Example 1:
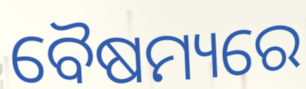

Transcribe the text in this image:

ବୈଷମ୍ୟରେ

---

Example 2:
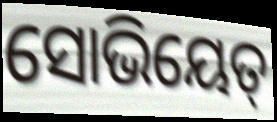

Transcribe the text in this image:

ସୋଭିୟେତ୍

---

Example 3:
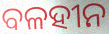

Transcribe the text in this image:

ବଳହୀନ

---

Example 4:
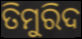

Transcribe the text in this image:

ତିମୁରିଦ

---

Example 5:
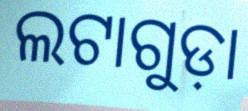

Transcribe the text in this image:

ଲଟାଗୁଡ଼ା